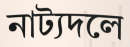
নাট্যদলে